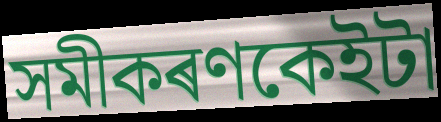
সমীকৰণকেইটা